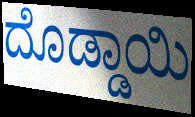
ದೊಡ್ಡಾಯಿ